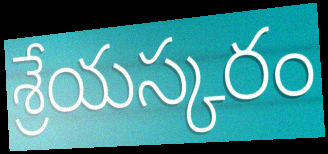
శ్రేయస్కరం